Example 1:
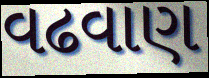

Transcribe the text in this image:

વઢવાણ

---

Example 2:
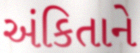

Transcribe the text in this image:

અંકિતાને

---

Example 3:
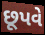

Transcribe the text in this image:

છૂપવે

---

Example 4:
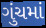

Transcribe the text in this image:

ગુંચમાં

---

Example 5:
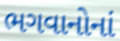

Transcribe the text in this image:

ભગવાનોનાં